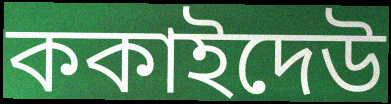
ককাইদেউ